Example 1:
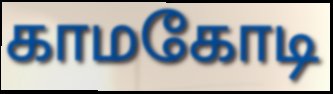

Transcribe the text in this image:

காமகோடி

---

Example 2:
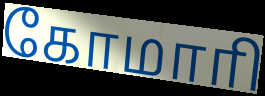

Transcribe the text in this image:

கோமாரி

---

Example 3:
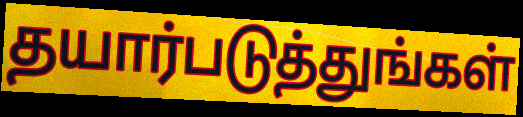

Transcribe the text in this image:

தயார்படுத்துங்கள்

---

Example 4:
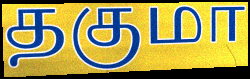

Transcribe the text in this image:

தகுமா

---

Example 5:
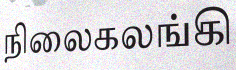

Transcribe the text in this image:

நிலைகலங்கி